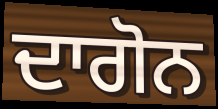
ਦਾਗੋਨ